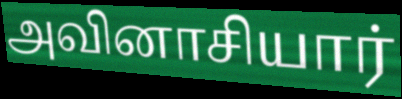
அவினாசியார்